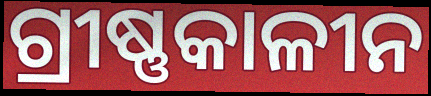
ଗ୍ରୀଷ୍ଣକାଳୀନ